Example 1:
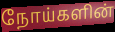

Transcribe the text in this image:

நோய்களின்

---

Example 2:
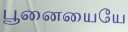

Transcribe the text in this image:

பூனையையே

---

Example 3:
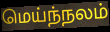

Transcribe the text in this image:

மெய்ந்நலம்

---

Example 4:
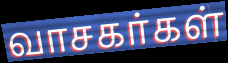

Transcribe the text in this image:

வாசகர்கள்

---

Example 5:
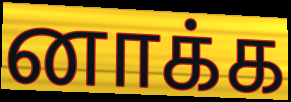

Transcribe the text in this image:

னாக்க